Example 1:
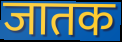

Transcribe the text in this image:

जातक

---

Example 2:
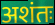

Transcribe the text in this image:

अशंतः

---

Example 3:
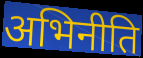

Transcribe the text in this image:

अभिनीति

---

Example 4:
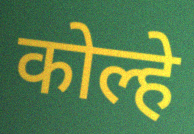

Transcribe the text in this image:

कोल्हे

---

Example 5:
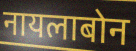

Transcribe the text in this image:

नायलाबोन